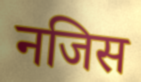
नजिस